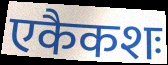
एकैकशः